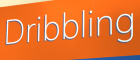
Dribbling